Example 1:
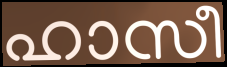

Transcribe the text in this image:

ഹാസീ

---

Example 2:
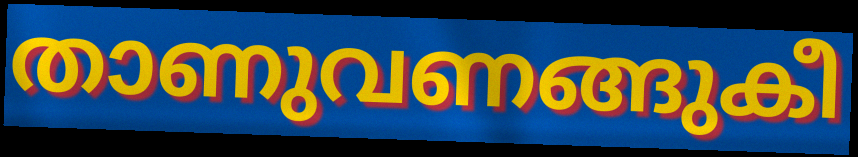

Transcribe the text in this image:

താണുവണങ്ങുകീ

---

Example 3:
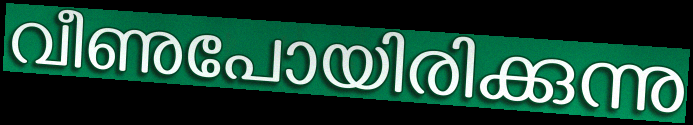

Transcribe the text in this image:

വീണുപോയിരിക്കുന്നു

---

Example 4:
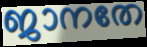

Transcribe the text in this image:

ജാനതേ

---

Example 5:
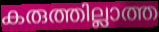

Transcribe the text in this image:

കരുത്തില്ലാത്ത